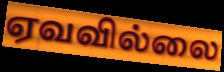
ஏவவில்லை